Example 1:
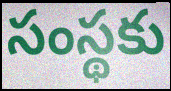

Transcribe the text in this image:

సంస్థకు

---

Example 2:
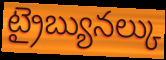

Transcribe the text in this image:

ట్రైబ్యునల్కు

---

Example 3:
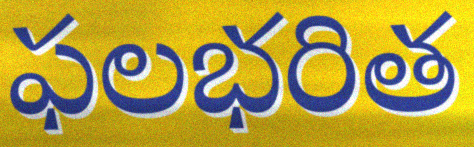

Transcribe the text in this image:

ఫలభరిత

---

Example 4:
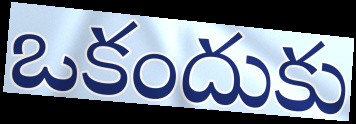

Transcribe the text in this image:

ఒకందుకు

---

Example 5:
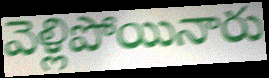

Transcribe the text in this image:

వెళ్లిపోయినారు